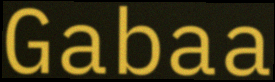
Gabaa